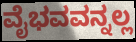
ವೈಭವವನ್ನಲ್ಲ